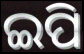
ଇପି